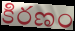
కిరణం